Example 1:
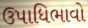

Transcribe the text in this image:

ઉપાધિભાવો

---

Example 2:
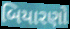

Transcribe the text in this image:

બિયારણો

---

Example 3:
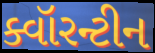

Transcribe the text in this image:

ક્વૉરન્ટીન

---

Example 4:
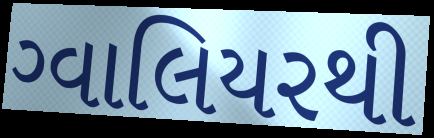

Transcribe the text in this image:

ગ્વાલિયરથી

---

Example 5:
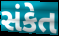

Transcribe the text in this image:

સંકેત